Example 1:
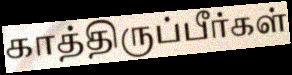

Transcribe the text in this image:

காத்திருப்பீர்கள்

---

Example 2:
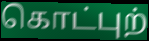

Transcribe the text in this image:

கொட்புற்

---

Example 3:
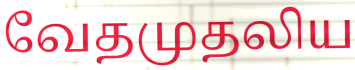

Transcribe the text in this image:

வேதமுதலிய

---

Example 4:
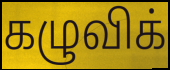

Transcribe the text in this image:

கழுவிக்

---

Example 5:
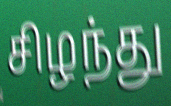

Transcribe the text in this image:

சிழந்து